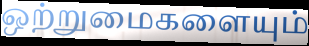
ஒற்றுமைகளையும்